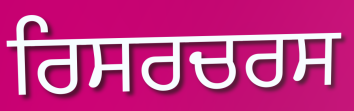
ਰਿਸਰਚਰਸ